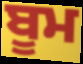
ਬੂਮ